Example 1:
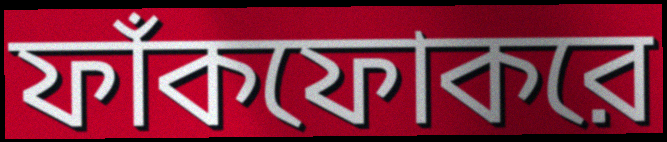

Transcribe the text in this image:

ফাঁকফোকরে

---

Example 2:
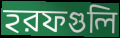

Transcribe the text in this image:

হরফগুলি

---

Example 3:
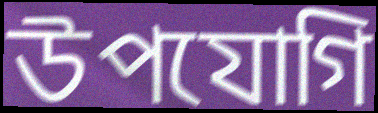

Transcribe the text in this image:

উপযোগি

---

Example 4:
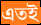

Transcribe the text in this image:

এতই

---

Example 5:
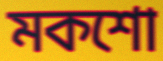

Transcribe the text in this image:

মকশো